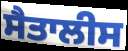
ਸੈਤਾਲੀਸ